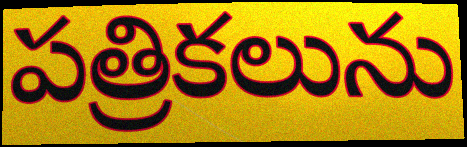
పత్రికలును